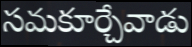
సమకూర్చేవాడు